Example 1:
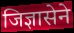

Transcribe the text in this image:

जिज्ञासेने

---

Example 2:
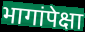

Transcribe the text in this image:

भागांपेक्षा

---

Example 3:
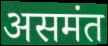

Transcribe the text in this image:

असमंत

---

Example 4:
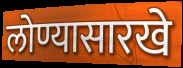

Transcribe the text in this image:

लोण्यासारखे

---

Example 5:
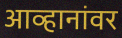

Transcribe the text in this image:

आव्हानांवर